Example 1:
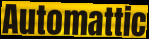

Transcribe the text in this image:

Automattic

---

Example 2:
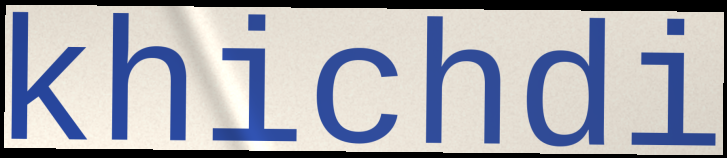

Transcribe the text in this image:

khichdi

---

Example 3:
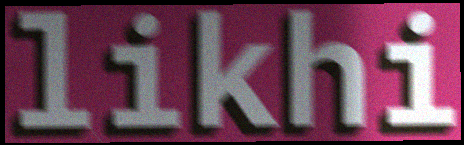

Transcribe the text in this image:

likhi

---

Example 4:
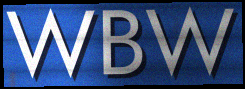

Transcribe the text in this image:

WBW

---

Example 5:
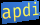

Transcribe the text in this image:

apdi